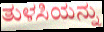
ತುಳಸಿಯನ್ನು